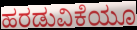
ಹರಡುವಿಕೆಯೂ